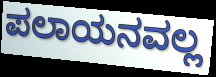
ಪಲಾಯನವಲ್ಲ